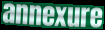
annexure